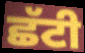
ਛੱਟੀ